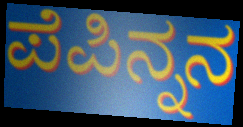
ಪೆಪಿನ್ನನ